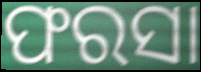
ଫରସା